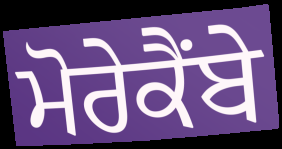
ਮੋਰੇਕੈਂਬੇ